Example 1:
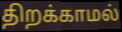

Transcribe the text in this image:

திறக்காமல்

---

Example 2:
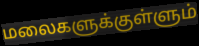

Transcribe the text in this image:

மலைகளுக்குள்ளும்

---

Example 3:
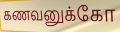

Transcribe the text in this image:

கணவனுக்கோ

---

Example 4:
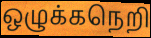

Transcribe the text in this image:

ஒழுக்கநெறி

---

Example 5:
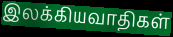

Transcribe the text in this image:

இலக்கியவாதிகள்